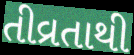
તીવ્રતાથી